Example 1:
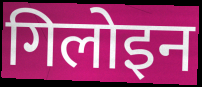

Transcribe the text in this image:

गिलोइन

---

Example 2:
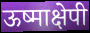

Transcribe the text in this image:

ऊष्माक्षेपी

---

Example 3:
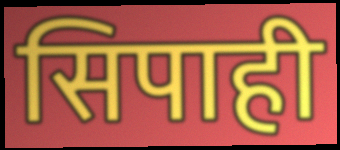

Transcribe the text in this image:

सिपाही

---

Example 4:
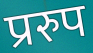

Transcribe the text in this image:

प्ररुप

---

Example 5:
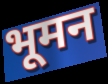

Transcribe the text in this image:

भूमन